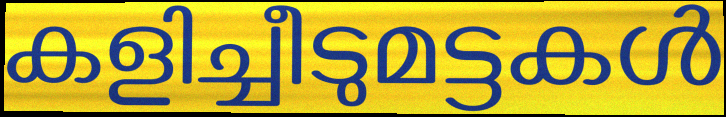
കളിച്ചീടുമട്ടകൾ